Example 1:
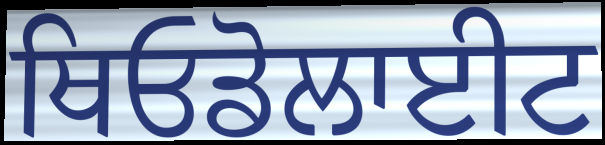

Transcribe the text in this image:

ਥਿਓਡੋਲਾਈਟ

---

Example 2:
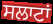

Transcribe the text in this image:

ਸਲਾਟਾਂ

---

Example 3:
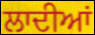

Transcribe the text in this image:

ਲਾਦੀਆਂ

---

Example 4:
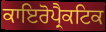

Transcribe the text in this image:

ਕਾਇਰੋਪ੍ਰੈਕਟਿਕ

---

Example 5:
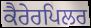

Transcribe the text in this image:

ਕੈਰੇਰਪਿਲਰ